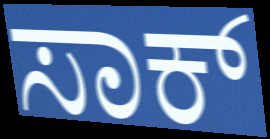
ಸಾಕ್